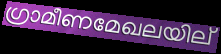
ഗ്രാമീണമേഖലയില്